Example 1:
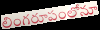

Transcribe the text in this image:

లింగరూపంలోనూ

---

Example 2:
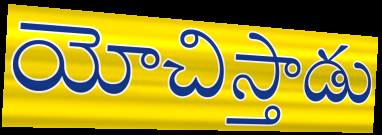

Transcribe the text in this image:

యోచిస్తాడు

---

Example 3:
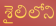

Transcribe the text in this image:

శైలిలోని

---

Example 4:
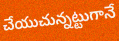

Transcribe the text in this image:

చేయుచున్నట్టుగానే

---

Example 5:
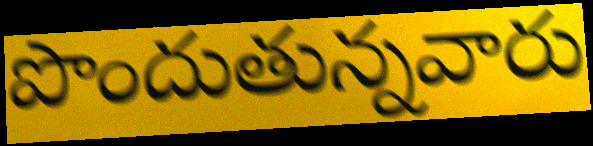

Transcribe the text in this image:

పొందుతున్నవారు